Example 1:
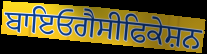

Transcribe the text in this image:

ਬਾਇਓਗੈਸੀਫਿਕੇਸ਼ਨ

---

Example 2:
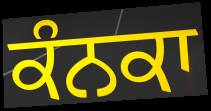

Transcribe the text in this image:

ਕੰਨਕਾ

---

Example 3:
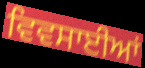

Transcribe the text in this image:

ਵਿਵਸਾਈਆਂ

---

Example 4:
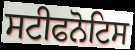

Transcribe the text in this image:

ਸਟੀਫਨੋਟਿਸ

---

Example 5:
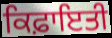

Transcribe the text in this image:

ਕਿਫ਼ਾਇਤੀ